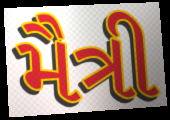
મૈત્રી